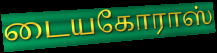
டையகோராஸ்